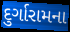
દુર્ગારામના